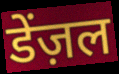
डेंज़ल